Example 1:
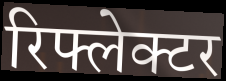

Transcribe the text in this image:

रिफ्लेक्टर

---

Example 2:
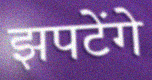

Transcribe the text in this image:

झपटेंगे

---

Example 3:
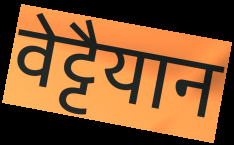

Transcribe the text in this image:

वेट्टैयान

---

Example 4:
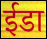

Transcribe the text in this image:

ईडा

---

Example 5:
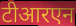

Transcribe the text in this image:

टीआरएन